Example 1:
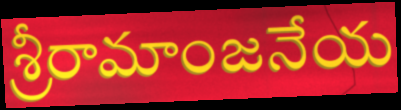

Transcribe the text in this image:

శ్రీరామాంజనేయ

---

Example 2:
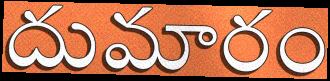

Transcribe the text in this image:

దుమారం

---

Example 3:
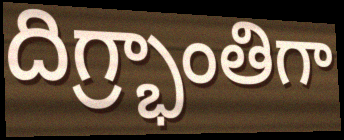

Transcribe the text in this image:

దిగ్ర్భాంతిగా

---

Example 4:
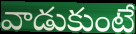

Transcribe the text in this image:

వాడుకుంటే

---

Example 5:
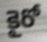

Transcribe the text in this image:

కైరో